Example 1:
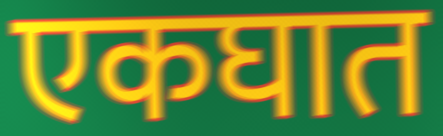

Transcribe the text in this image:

एकघात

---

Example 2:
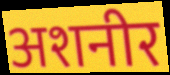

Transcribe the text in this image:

अशनीर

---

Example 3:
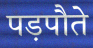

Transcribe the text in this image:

पड़पौते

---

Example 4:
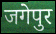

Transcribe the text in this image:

जगेपुर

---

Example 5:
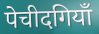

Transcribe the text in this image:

पेचीदगियाँ